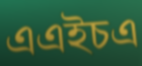
এএইচএ